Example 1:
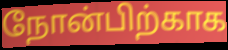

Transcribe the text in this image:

நோன்பிற்காக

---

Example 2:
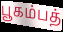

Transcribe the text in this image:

பூகம்பத்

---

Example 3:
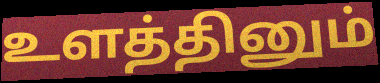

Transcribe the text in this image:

உளத்தினும்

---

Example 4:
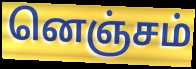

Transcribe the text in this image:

னெஞ்சம்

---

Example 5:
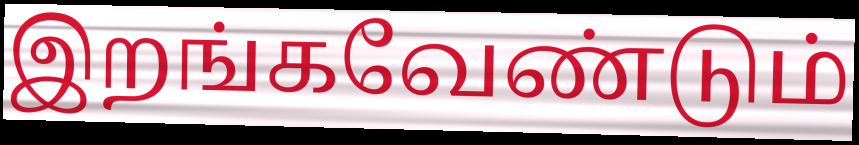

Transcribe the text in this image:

இறங்கவேண்டும்